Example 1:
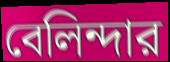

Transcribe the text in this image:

বেলিন্দার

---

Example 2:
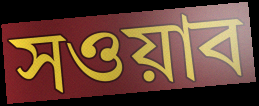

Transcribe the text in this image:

সওয়াব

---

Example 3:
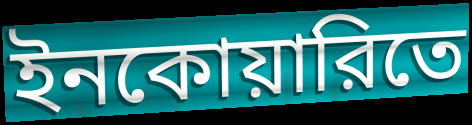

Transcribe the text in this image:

ইনকোয়ারিতে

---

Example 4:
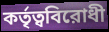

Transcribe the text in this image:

কর্তৃত্ববিরোধী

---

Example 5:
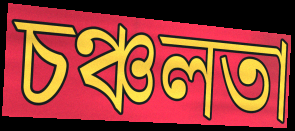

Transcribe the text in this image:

চঞ্চলতা